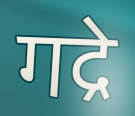
गद्रे